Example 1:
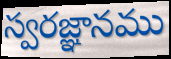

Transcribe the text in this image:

స్వరజ్ఞానము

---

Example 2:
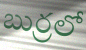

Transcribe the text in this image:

బుర్రలో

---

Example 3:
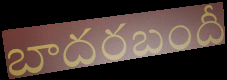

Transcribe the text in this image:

బాదరబందీ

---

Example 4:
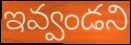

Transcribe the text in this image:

ఇవ్వండని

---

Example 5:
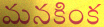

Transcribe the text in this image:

మనకింక